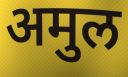
अमुल